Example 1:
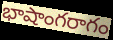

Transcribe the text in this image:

భాషాంగరాగం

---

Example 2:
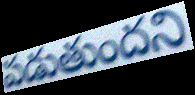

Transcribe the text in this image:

పడుతుందని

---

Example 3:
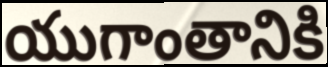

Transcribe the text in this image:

యుగాంతానికి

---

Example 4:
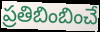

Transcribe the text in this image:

ప్రతిబింబించే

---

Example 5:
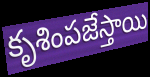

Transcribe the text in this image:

కృశింపజేస్తాయి